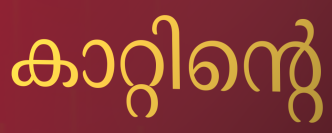
കാറ്റിന്റെ